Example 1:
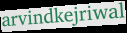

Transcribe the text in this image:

arvindkejriwal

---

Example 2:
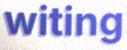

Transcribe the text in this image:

witing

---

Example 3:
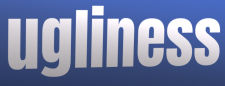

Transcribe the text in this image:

ugliness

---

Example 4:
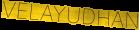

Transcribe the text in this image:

VELAYUDHAN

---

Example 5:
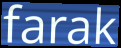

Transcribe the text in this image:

farak